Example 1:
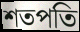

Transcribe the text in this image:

শতপতি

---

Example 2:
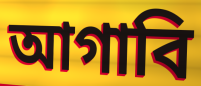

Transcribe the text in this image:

আগাবি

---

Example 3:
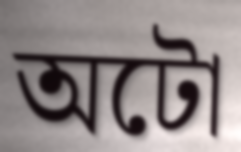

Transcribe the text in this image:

অটো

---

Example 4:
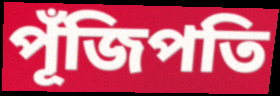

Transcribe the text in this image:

পূঁজিপতি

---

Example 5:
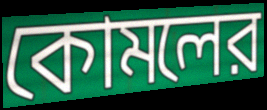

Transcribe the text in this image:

কোমলের